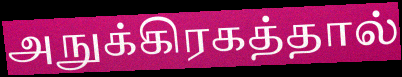
அநுக்கிரகத்தால்